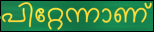
പിറ്റേന്നാണ്